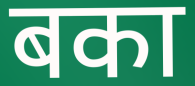
बका